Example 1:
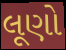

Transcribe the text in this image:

લૂણો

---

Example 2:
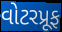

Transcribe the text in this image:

વોટરપ્રૂફ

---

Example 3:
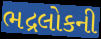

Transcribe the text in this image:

ભદ્રલોકની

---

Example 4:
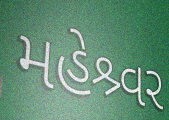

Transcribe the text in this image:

મહેશ્ર્વર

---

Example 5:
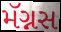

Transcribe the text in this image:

મૅગ્નસ